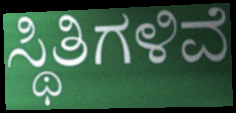
ಸ್ಥಿತಿಗಳಿವೆ